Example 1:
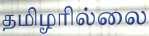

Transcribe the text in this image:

தமிழரில்லை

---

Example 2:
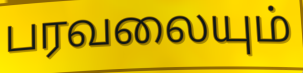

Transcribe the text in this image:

பரவலையும்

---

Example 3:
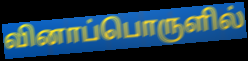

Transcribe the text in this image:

வினாப்பொருளில்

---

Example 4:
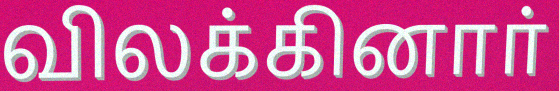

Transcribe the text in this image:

விலக்கினார்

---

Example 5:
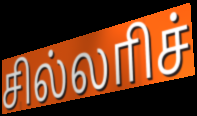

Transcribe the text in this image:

சில்லரிச்